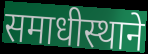
समाधीस्थाने